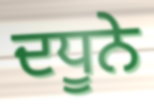
ਦਧੂਨੇ